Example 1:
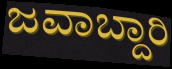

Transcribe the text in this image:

ಜವಾಬ್ದಾರಿ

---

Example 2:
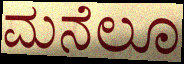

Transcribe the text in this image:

ಮನೆಲೂ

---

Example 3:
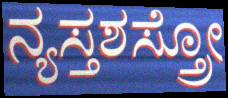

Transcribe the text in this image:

ನ್ಯಸ್ತಶಸ್ತ್ರೋ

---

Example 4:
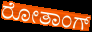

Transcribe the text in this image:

ರೋತಾಂಗ್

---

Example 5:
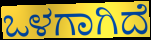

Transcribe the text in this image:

ಒಳಗಾಗಿದೆ